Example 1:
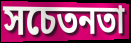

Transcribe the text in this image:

সচেতনতা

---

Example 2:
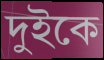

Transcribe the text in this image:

দুইকে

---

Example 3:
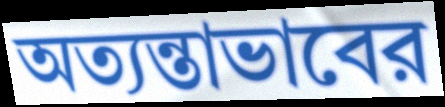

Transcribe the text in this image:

অত্যন্তাভাবের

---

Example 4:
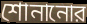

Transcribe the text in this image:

শোনানোর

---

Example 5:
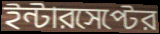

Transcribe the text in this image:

ইন্টারসেপ্টের